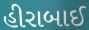
હીરાબાઈ